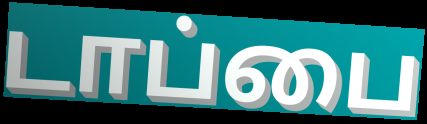
டாப்பை